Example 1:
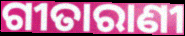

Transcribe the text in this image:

ଗୀତାରାଣୀ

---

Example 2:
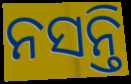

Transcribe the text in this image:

ନସନ୍ତି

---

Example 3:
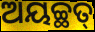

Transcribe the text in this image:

ଅୟଚ୍ଛତ୍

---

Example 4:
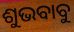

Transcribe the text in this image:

ଶୁଭବାବୁ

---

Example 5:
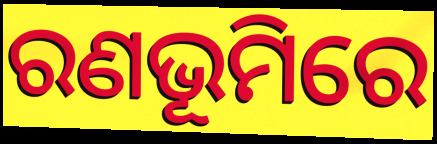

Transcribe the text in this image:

ରଣଭୂମିରେ